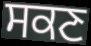
ਸਕਣ